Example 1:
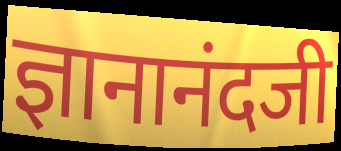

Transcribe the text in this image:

ज्ञानानंदजी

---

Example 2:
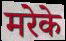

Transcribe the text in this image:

मरेके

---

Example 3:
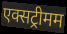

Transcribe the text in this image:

एक्सट्रीमम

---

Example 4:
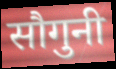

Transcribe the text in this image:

सौगुनी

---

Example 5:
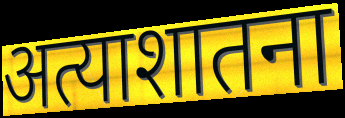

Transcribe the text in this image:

अत्याशातना